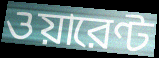
ওয়ারেণ্ট